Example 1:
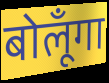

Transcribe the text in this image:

बोलूँगा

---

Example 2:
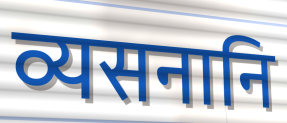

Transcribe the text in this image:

व्यसनानि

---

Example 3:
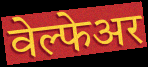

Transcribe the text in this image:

वेल्फेअर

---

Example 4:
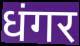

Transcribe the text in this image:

धंगर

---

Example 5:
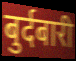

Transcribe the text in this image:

बुर्दबारी